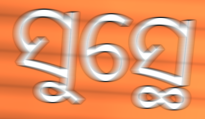
ସୁସ୍ଥେ